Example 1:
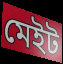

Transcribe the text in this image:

মেইট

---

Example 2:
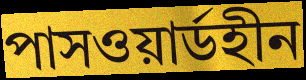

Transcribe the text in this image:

পাসওয়ার্ডহীন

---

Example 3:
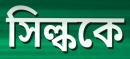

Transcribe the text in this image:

সিল্ককে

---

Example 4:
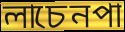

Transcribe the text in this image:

লাচেনপা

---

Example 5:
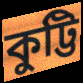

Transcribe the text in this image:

কুট্টি